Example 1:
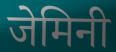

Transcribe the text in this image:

जेमिनी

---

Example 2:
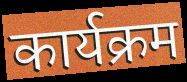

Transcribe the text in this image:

कार्यक्रम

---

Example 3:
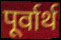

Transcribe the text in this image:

पूर्वार्थ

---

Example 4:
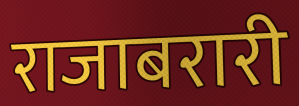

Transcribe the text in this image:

राजाबरारी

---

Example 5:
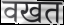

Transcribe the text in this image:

वखत